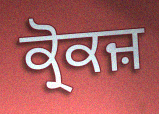
ਕ੍ਰੋਕਜ਼